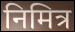
निमित्र